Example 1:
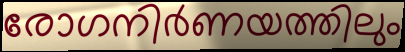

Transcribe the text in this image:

രോഗനിർണയത്തിലും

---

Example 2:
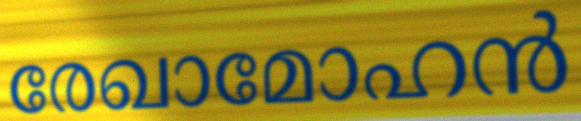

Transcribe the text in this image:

രേഖാമോഹൻ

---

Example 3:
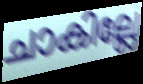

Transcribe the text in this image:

ചാകില്ലേ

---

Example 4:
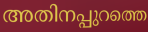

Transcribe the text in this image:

അതിനപ്പുറത്തെ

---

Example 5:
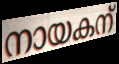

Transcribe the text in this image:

നായകന്